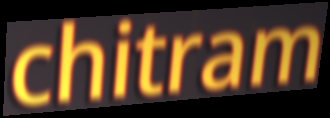
chitram